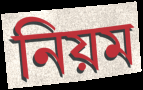
নিয়ম